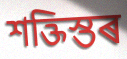
শক্তিস্তৰ